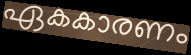
ഏകകാരണം